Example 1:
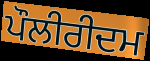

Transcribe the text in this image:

ਪੌਲੀਰੀਦਮ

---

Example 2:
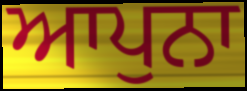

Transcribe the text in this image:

ਆਪੁਨਾ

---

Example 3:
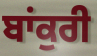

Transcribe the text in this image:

ਬਾਂਕੁਰੀ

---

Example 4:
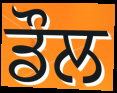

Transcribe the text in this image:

ਡੌਲ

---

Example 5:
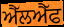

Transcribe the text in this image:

ਐੱਲਐੱਫ